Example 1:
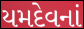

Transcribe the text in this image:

યમદેવનાં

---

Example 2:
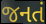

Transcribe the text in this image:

જનતં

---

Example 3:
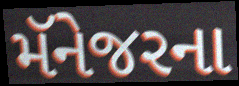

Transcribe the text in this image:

મૅનેજરના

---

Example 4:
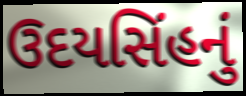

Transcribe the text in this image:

ઉદયસિંહનું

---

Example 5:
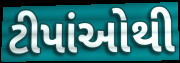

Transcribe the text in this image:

ટીપાંઓથી